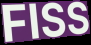
FISS